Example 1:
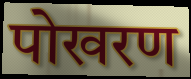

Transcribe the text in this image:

पोखरण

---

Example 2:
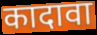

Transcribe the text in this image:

कादावा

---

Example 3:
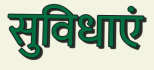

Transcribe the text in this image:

सुविधाएं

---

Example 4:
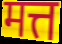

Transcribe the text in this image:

मत्त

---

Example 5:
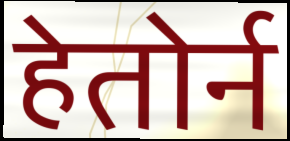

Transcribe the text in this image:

हेतोर्न